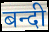
बन्दी